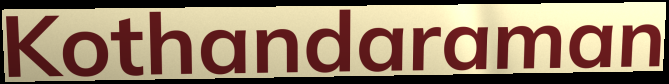
Kothandaraman